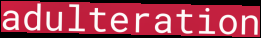
adulteration